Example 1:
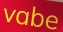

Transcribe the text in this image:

vabe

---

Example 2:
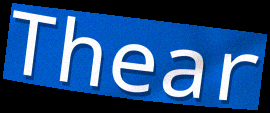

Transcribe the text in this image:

Thear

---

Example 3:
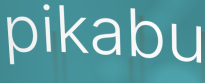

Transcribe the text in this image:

pikabu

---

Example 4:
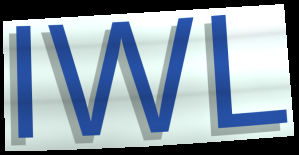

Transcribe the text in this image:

IWL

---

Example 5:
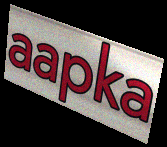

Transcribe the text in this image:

aapka